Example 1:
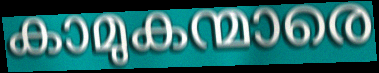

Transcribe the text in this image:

കാമുകന്മാരെ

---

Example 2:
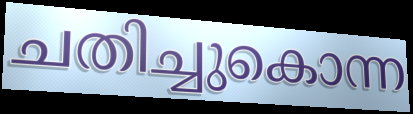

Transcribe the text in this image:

ചതിച്ചുകൊന്ന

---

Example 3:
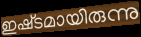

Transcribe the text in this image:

ഇഷ്‌ടമായിരുന്നു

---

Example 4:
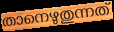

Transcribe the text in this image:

താനെഴുതുന്നത്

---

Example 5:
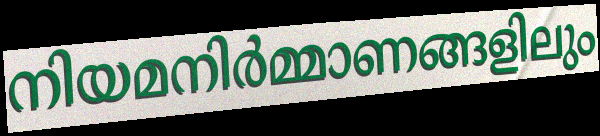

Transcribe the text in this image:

നിയമനിർമ്മാണങ്ങളിലും